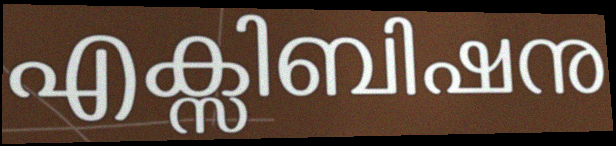
എക്സിബിഷനു